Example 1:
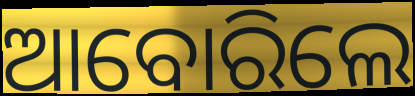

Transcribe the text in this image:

ଆବୋରିଲେ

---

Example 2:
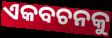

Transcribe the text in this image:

ଏକବଚନକୁ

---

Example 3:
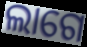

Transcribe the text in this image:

ଲାଗେ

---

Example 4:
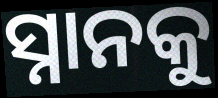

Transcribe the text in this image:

ସ୍ନାନକୁ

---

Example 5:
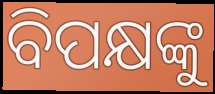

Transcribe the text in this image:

ବିପକ୍ଷଙ୍କୁ